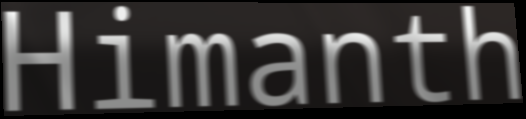
Himanth